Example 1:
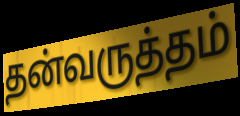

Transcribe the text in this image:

தன்வருத்தம்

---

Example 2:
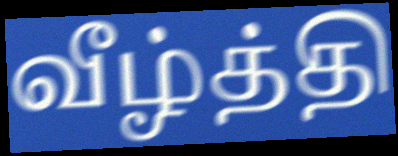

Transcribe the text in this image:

வீழ்த்தி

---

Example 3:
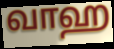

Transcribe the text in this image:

வாஹ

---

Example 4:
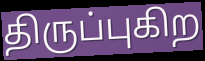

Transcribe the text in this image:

திருப்புகிற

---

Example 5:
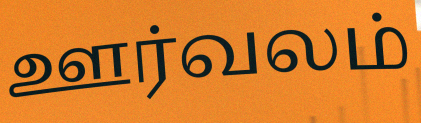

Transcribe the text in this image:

ஊர்வலம்